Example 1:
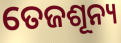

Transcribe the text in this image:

ତେଜଶୂନ୍ୟ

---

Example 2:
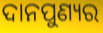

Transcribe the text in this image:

ଦାନପୁଣ୍ୟର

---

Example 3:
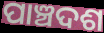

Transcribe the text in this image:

ପାଞ୍ଚଦଶ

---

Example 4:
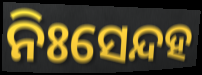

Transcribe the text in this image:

ନିଃସେନ୍ଦହ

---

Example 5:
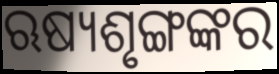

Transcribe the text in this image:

ଋଷ୍ୟଶୃଙ୍ଗଙ୍କର